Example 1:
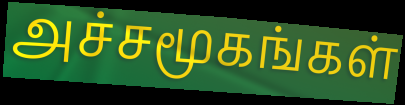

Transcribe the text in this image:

அச்சமூகங்கள்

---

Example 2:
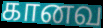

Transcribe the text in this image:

கானவ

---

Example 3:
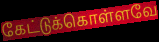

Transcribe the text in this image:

கேட்டுக்கொள்ளவே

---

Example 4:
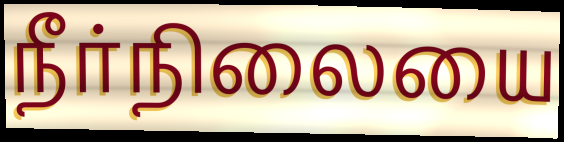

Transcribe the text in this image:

நீர்நிலையை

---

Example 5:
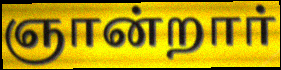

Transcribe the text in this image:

ஞான்றார்